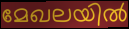
മേഖലയിൽ